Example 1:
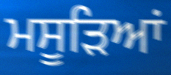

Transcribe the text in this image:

ਮਸੂੜਿਆਂ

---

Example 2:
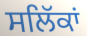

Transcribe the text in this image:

ਸਲਿੱਕਾਂ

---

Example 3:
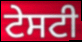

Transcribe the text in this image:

ਟੇਸਟੀ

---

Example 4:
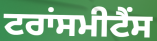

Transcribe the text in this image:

ਟਰਾਂਸਮੀਟੈਂਸ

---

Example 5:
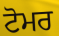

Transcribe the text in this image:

ਟੋਮਰ